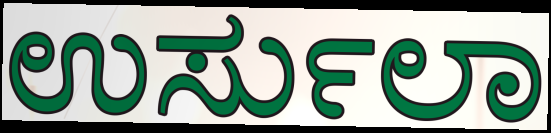
ಉರ್ಸುಲಾ